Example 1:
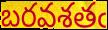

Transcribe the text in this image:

బరవశతఁ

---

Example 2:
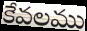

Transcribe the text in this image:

కేవలము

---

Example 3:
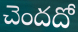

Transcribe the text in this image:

చెందదో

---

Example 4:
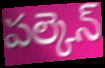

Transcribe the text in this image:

పల్కెన్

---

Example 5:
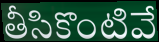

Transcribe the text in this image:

తీసికొంటివే